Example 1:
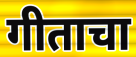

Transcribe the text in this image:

गीताचा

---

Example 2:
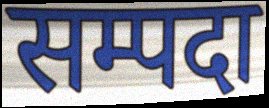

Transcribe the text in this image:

सम्पदा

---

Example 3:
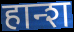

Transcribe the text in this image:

हान्श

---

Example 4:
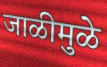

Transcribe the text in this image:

जाळीमुळे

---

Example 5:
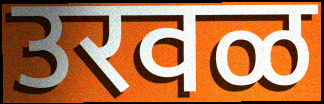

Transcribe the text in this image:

उरवळ